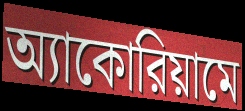
অ্যাকোরিয়ামে